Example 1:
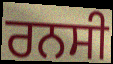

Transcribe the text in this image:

ਰਨਸੀ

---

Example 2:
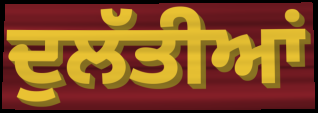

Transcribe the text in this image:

ਦੁਲੱਤੀਆਂ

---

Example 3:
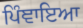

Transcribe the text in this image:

ਪਿੰਞਾਇਆ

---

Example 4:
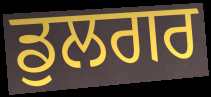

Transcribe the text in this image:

ਡੁਲਗਰ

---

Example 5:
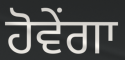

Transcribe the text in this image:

ਹੋਵੇਂਗਾ